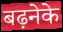
बढ़नेके